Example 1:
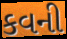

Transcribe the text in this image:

કવની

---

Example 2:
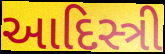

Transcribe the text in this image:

આદિસ્ત્રી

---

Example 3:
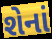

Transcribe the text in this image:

શેનાં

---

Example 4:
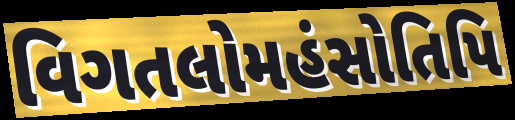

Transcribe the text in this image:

વિગતલોમહંસોતિપિ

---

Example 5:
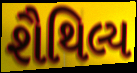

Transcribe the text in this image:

શૈથિલ્ય